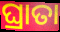
ଘ୍ରାତା